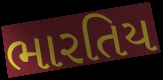
ભારતિય